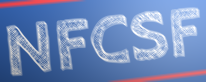
NFCSF